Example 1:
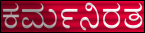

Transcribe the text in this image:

ಕರ್ಮನಿರತ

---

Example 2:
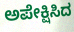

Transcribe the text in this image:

ಅಪೇಕ್ಷಿಸಿದ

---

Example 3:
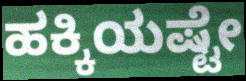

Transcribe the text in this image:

ಹಕ್ಕಿಯಷ್ಟೇ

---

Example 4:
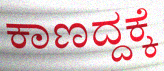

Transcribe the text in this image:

ಕಾಣದ್ದಕ್ಕೆ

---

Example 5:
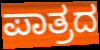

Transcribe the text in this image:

ಪಾತ್ರದ